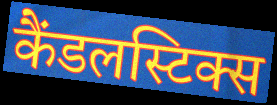
कैंडलस्टिक्स